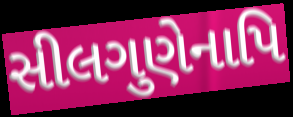
સીલગુણેનાપિ